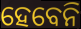
ହେବେନି